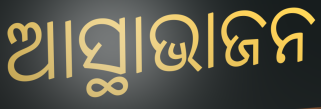
ଆସ୍ଥାଭାଜନ